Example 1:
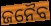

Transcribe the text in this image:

ଜନୈବ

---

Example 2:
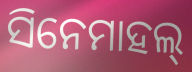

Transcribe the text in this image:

ସିନେମାହଲ୍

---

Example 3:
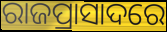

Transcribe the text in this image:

ରାଜପ୍ରାସାଦରେ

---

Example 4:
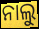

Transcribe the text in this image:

ନାଲୁ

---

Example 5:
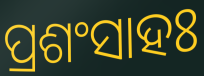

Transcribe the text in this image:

ପ୍ରଶଂସାହଃ